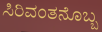
ಸಿರಿವಂತನೊಬ್ಬ